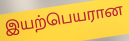
இயற்பெயரான